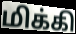
மிக்கி